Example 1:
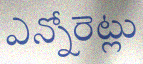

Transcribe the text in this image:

ఎన్నోరెట్లు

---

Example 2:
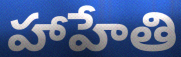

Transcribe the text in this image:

హాహేతి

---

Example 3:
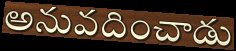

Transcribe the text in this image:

అనువదించాడు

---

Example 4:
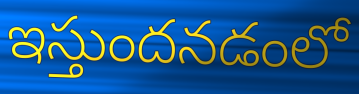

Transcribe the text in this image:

ఇస్తుందనడంలో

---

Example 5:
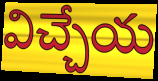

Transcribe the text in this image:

విచ్చేయ